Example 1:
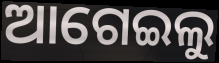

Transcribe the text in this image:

ଆଗେଇଲୁ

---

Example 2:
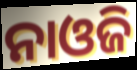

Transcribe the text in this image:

ନାଓଜି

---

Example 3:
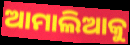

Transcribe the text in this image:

ଆମାଲିଆକୁ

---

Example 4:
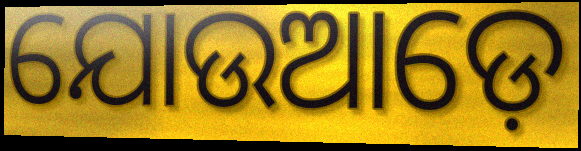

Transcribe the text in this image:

ଯୋଉଆଡ଼େ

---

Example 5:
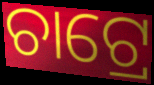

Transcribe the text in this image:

ଚାଟ୍ରେ